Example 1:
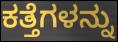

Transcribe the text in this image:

ಕತ್ತೆಗಳನ್ನು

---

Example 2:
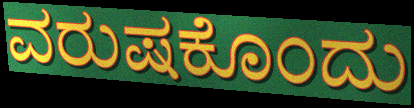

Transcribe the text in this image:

ವರುಷಕೊಂದು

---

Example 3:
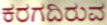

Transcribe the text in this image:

ಕರಗದಿರುವ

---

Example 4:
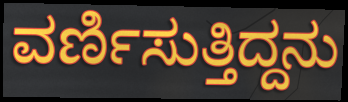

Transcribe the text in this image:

ವರ್ಣಿಸುತ್ತಿದ್ದನು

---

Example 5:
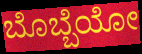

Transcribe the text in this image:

ಬೊಬ್ಬೆಯೋ